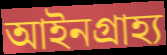
আইনগ্রাহ্য